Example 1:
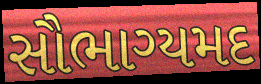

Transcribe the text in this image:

સૌભાગ્યમદ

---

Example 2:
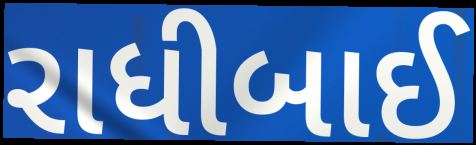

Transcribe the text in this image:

રાધીબાઈ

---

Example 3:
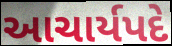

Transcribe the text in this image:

આચાર્યપદે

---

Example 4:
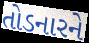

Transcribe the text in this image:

તોડનારને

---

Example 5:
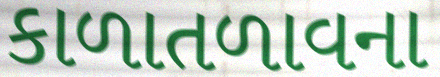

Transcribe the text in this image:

કાળાતળાવના